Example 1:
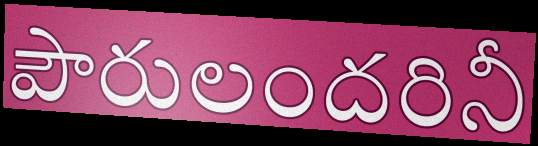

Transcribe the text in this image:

పౌరులందరినీ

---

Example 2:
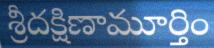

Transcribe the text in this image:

శ్రీదక్షిణామూర్తిం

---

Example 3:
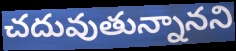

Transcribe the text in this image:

చదువుతున్నానని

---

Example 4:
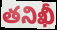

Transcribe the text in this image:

తనిఖీ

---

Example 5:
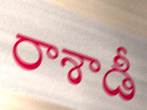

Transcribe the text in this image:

రాశాడీ